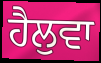
ਹੈਲੁਵਾ